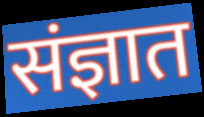
संज्ञात